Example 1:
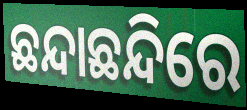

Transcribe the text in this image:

ଛନ୍ଦାଛନ୍ଦିରେ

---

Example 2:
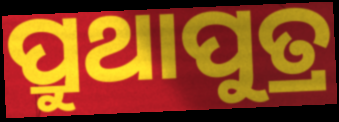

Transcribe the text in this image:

ପ୍ରୁଥାପୁତ୍ର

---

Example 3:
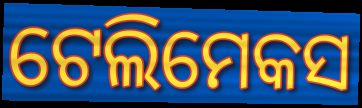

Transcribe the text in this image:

ଟେଲିମେକସ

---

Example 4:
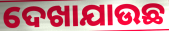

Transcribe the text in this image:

ଦେଖାଯାଉଛ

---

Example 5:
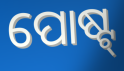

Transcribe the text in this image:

ପୋଷ୍ଟ୍